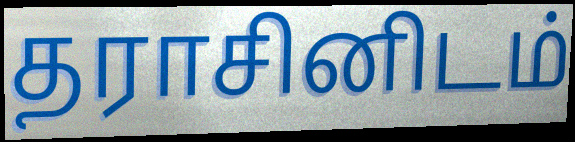
தராசினிடம்